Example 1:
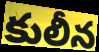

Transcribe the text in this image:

కులీన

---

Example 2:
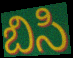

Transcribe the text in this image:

బిసి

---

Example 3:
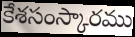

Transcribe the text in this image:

కేశసంస్కారము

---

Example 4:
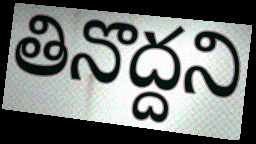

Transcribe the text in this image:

తినొద్దని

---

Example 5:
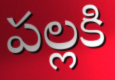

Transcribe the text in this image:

పల్లకి